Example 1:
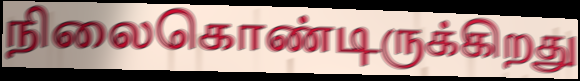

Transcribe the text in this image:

நிலைகொண்டிருக்கிறது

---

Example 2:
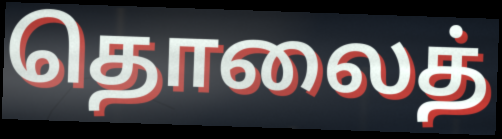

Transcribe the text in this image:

தொலைத்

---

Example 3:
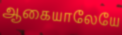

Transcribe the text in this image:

ஆகையாலேயே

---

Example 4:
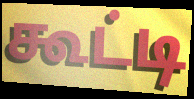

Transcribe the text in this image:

கூட்டி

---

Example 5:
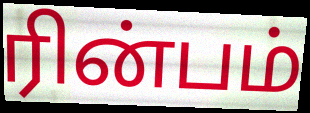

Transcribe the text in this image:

ரின்பம்